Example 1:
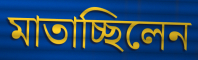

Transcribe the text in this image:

মাতাচ্ছিলেন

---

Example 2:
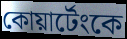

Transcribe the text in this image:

কোয়ার্টেংকে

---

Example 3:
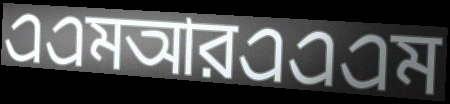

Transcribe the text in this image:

এএমআরএএএম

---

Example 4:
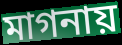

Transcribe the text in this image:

মাগনায়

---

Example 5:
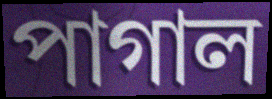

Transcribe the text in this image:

পাগাল